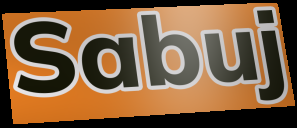
Sabuj